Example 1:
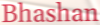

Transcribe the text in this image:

Bhashan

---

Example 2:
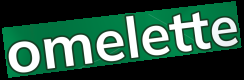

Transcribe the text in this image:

omelette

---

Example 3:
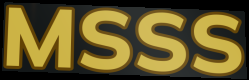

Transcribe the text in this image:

MSSS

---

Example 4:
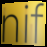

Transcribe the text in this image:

nif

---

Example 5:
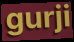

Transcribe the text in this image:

gurji